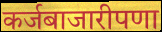
कर्जबाजारीपणा